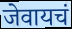
जेवायचं